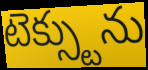
టెక్స్టును